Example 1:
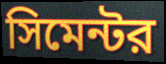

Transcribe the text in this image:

সিমেন্টর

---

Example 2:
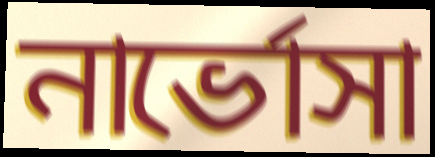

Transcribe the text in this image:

নার্ভোসা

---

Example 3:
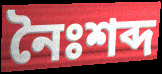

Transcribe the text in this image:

নৈঃশব্দ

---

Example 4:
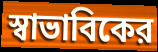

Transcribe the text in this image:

স্বাভাবিকের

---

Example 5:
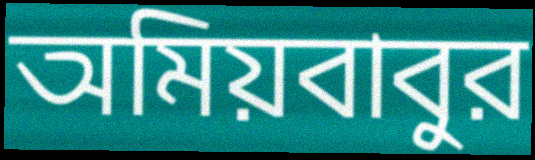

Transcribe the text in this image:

অমিয়বাবুর